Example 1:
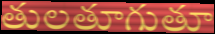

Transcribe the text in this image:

తులతూగుతూ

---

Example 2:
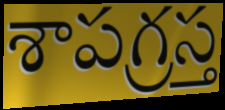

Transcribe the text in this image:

శాపగ్రస్త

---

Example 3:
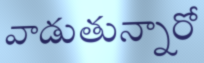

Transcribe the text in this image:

వాడుతున్నారో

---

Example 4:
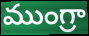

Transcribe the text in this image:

ముంగ్రా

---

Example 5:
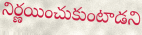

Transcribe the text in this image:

నిర్ణయించుకుంటాడని